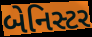
બેનિસ્ટર